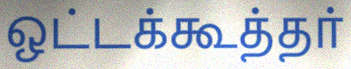
ஒட்டக்கூத்தர்